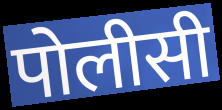
पोलीसी